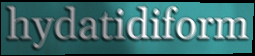
hydatidiform